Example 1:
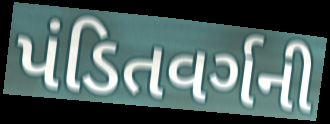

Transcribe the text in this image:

પંડિતવર્ગની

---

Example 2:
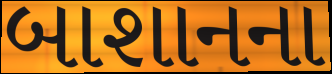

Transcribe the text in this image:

બાશાનના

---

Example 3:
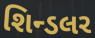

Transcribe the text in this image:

શિન્ડલર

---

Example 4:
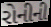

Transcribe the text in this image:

રોનીની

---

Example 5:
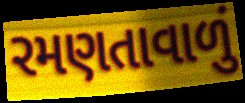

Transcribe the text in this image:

રમણતાવાળું